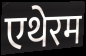
एथेरम